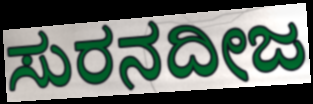
ಸುರನದೀಜ